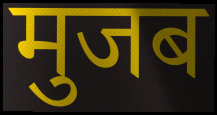
मुजब